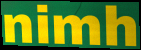
nimh